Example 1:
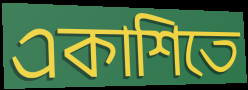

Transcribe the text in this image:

একাশিতে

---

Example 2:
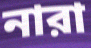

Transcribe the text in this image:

নারা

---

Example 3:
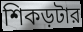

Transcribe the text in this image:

শিকড়টার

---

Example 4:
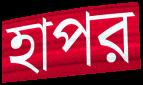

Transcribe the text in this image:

হাপর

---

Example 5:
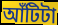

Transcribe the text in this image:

আঁটিটা